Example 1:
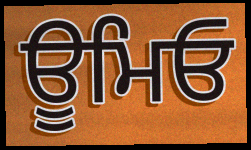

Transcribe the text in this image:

ਊਮਿਓ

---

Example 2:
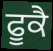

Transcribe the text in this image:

ਫੂਕੈ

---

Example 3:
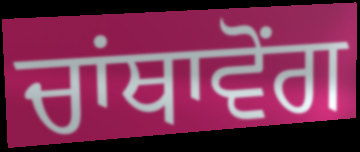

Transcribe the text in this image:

ਚਾਂਥਾਵੋਂਗ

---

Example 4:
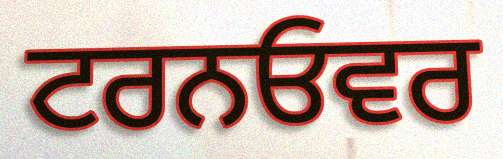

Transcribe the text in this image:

ਟਰਨਓਵਰ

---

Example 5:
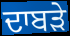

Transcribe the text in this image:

ਦਾਬੜੇ